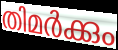
തിമർക്കും